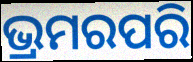
ଭ୍ରମରପରି